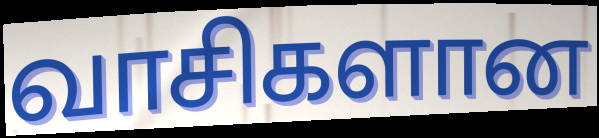
வாசிகளான